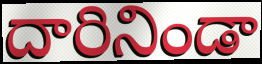
దారినిండా